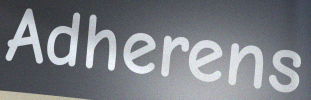
Adherens